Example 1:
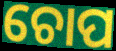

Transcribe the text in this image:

ଚୋପ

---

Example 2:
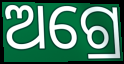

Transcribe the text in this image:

ଅଗ୍ରେ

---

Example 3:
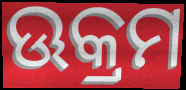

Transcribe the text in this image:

ଊକ୍ରମ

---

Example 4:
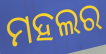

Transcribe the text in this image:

ମହଲର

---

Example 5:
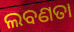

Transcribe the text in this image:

ଲବଣତା